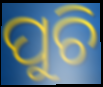
ପୁଚି